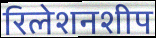
रिलेशनशीप